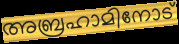
അബ്രഹാമിനോട്